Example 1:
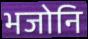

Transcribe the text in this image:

भजोनि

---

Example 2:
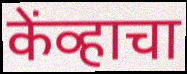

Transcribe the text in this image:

केंव्हाचा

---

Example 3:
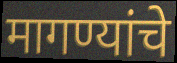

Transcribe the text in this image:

मागण्यांचे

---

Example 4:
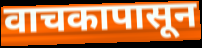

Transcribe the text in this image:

वाचकापासून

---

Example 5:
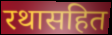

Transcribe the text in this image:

रथासहित